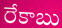
రేకాబు